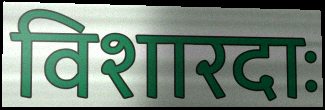
विशारदाः